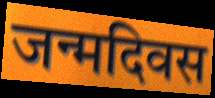
जन्मदिवस